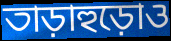
তাড়াহুড়োও